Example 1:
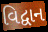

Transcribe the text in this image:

વિદ્વાન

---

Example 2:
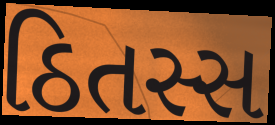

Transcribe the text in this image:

ઠિતસ્સ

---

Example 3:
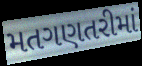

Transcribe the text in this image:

મતગણતરીમાં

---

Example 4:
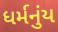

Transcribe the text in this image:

ધર્મનુંય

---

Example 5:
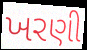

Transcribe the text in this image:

ખરણી